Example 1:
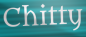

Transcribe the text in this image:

Chitty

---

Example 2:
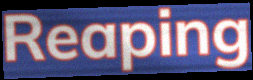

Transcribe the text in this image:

Reaping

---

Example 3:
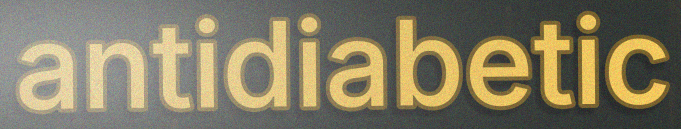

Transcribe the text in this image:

antidiabetic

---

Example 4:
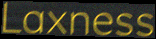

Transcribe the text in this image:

Laxness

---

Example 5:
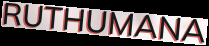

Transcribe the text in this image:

RUTHUMANA